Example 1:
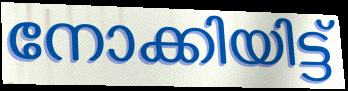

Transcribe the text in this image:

നോക്കിയിട്ട്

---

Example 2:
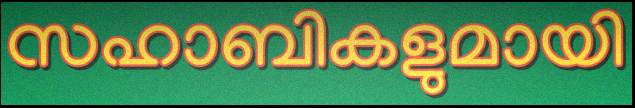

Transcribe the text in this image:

സഹാബികളുമായി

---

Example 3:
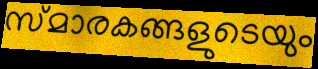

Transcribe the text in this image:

സ്മാരകങ്ങളുടെയും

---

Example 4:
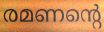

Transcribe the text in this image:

രമണന്റെ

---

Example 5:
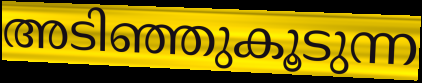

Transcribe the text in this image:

അടിഞ്ഞുകൂടുന്ന